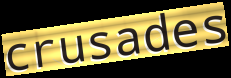
crusades